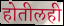
होतीलही